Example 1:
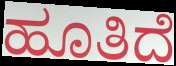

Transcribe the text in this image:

ಹೂತಿದೆ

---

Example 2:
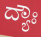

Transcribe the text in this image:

ದ್ಯೌಃ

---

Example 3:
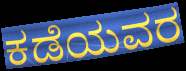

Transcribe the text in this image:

ಕಡೆಯವರ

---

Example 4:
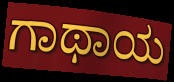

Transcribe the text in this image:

ಗಾಥಾಯ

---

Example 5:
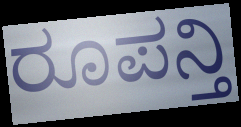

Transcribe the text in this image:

ರೂಪನ್ತಿ